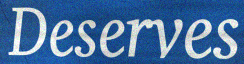
Deserves